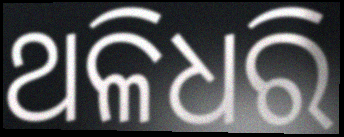
ଥଳିଧରି